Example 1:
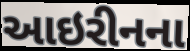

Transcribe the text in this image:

આઇરીનના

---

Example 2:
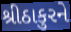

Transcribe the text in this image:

શ્રીઠાકુરને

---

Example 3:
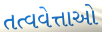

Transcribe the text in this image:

તત્વવેત્તાઓ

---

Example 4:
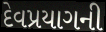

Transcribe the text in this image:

દેવપ્રયાગની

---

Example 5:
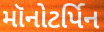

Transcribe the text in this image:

મૉનોટર્પિન